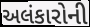
અલંકારોની